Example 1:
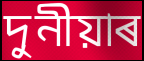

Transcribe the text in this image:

দুনীয়াৰ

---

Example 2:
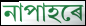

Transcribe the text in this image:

নাপাহৰে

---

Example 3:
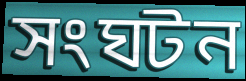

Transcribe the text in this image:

সংঘটন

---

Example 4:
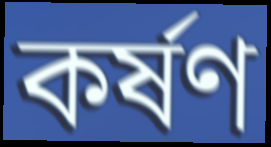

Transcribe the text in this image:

কৰ্ষণ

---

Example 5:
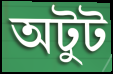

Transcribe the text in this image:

অটুট